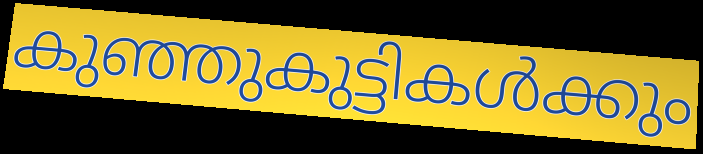
കുഞ്ഞുകുട്ടികൾക്കും